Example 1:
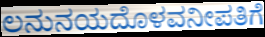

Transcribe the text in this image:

ಲನುನಯದೊಳವನೀಪತಿಗೆ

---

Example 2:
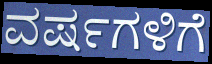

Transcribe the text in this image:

ವರ್ಷಗಳಿಗೆ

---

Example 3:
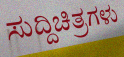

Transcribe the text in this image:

ಸುದ್ದಿಚಿತ್ರಗಳು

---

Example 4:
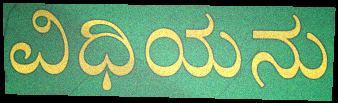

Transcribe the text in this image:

ವಿಧಿಯನು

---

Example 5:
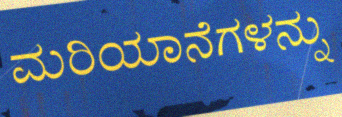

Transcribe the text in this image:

ಮರಿಯಾನೆಗಳನ್ನು